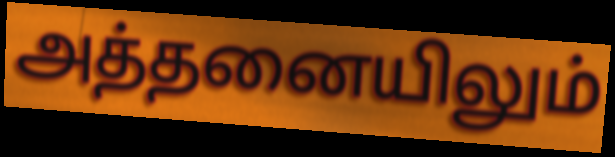
அத்தனையிலும்